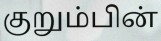
குறும்பின்